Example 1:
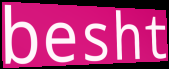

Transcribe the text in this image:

besht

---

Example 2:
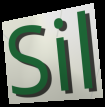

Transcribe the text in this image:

Sil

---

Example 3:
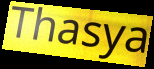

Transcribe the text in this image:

Thasya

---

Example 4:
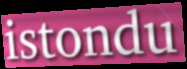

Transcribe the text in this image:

istondu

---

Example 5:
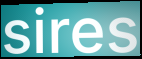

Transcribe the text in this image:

sires